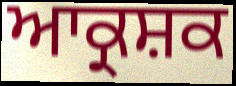
ਆਕ੍ਰਸ਼ਕ